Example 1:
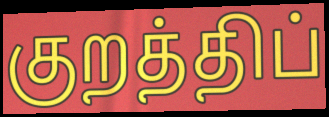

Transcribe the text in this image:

குறத்திப்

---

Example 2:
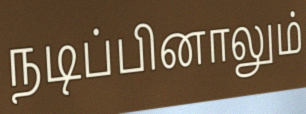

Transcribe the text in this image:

நடிப்பினாலும்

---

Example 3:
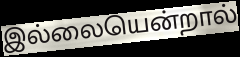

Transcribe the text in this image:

இல்லையென்றால்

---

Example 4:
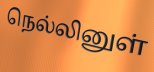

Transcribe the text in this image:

நெல்லினுள்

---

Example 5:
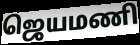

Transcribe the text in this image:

ஜெயமணி